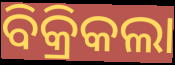
ବିକ୍ରିକଲା